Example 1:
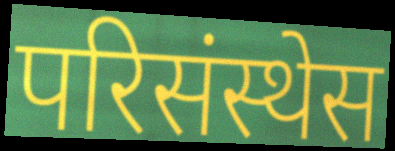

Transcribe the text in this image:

परिसंस्थेस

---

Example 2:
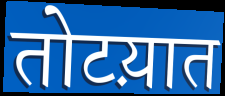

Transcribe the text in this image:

तोटय़ात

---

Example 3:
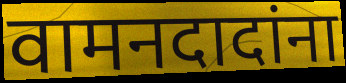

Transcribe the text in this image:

वामनदादांना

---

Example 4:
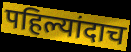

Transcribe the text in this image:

पहिल्यांदाच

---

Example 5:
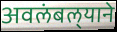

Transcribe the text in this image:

अवलंबल्याने